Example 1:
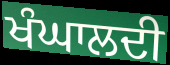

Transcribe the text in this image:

ਖੰਘਾਲਦੀ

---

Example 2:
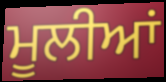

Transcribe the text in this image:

ਮੂਲੀਆਂ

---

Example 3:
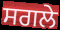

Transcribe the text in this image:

ਸਗਲੇ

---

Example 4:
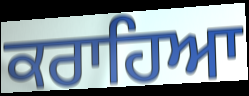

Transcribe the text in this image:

ਕਰਾਹਿਆ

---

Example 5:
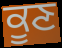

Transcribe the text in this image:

ਕੂਣ